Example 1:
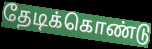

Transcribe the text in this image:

தேடிக்கொண்டு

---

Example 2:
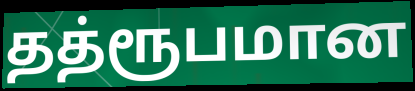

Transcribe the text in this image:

தத்ரூபமான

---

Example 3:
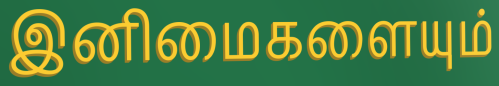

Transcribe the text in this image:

இனிமைகளையும்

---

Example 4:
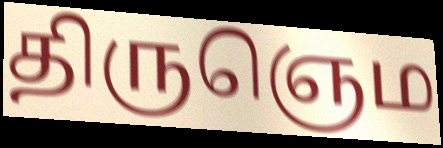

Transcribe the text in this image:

திருஞெம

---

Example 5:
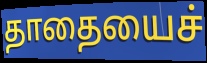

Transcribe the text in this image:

தாதையைச்